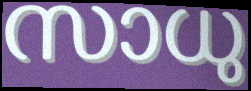
സാധു